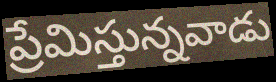
ప్రేమిస్తున్నవాడు